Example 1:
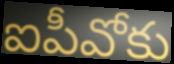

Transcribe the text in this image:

ఐపీవోకు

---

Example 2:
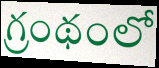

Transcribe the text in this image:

గ్రంథంలో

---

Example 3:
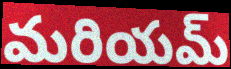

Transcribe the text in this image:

మరియమ్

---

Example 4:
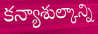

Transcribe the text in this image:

కన్యాశుల్కాన్ని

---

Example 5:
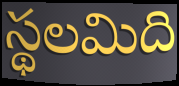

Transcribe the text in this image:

స్థలమిది